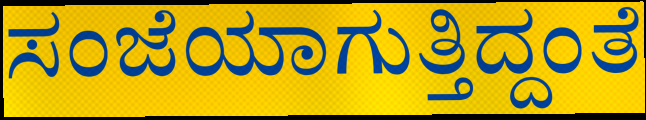
ಸಂಜೆಯಾಗುತ್ತಿದ್ದಂತೆ